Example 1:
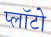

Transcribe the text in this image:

प्लॉटो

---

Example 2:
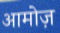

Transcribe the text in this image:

आमोज़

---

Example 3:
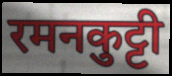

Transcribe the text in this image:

रमनकुट्टी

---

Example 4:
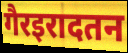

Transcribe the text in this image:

गैरइरादतन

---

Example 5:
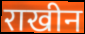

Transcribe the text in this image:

राखीन